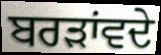
ਬਰੜਾਂਵਦੇ